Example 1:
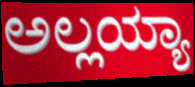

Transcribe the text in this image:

ಅಲ್ಲಯ್ಯಾ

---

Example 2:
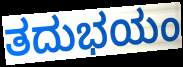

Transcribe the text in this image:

ತದುಭಯಂ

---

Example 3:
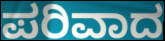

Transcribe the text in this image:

ಪರಿವಾದ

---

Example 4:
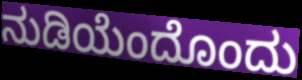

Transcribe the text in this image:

ನುಡಿಯೆಂದೊಂದು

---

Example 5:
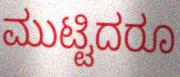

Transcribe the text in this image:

ಮುಟ್ಟಿದರೂ